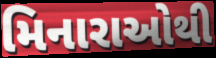
મિનારાઓથી